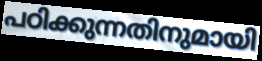
പഠിക്കുന്നതിനുമായി